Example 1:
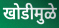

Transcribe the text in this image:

खोडीमुळे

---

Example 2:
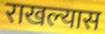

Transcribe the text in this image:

राखल्यास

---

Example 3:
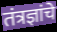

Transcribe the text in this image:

तंत्रज्ञांचे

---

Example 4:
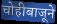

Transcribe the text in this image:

चोहीबाजूने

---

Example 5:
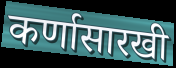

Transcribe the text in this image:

कर्णासारखी